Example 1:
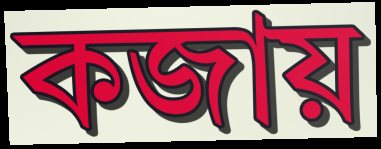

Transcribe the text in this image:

কজায়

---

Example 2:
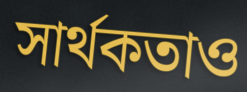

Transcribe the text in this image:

সার্থকতাও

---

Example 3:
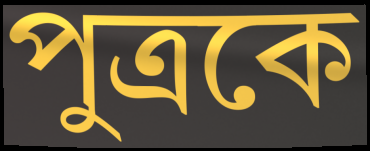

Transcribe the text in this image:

পুত্রকে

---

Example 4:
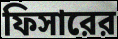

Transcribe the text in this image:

ফিসারের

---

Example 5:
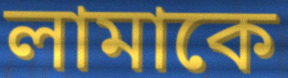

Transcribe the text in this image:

লামাকে